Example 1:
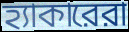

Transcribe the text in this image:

হ্যাকারেরা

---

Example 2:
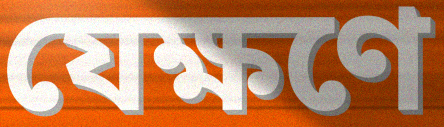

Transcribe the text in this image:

যেক্ষণে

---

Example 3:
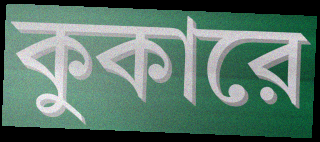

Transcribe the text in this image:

কুকারে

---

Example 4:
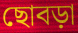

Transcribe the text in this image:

ছোবড়া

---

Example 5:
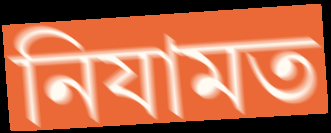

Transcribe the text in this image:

নিযামত